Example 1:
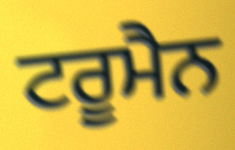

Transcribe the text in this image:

ਟਰੂਮੈਨ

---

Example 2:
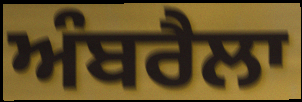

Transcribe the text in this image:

ਅੰਬਰੈਲਾ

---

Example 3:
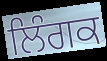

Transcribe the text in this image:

ਲਿੰਗਕ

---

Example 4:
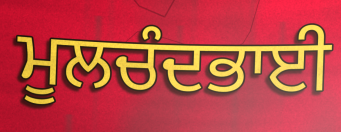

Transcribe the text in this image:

ਮੂਲਚੰਦਭਾਈ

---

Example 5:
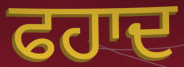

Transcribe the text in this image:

ਫਹਾਦ